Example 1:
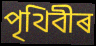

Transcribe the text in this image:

পৃথিবীৰ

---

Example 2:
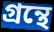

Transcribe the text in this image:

গ্ৰন্থে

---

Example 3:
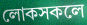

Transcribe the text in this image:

লোকসকলে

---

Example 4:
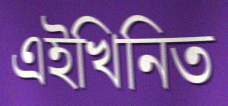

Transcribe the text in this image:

এইখিনিত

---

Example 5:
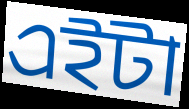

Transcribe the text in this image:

এইটা